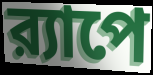
র‍্যাপে